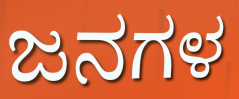
ಜನಗಳ